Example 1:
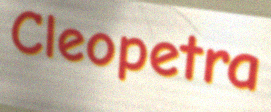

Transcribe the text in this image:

Cleopetra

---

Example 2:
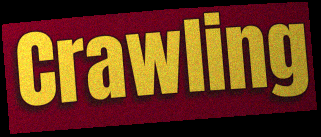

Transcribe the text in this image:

Crawling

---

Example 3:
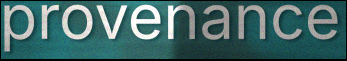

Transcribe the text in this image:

provenance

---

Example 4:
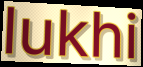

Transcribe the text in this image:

lukhi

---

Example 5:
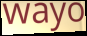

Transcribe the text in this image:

wayo